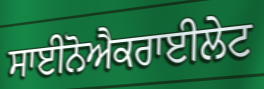
ਸਾਈਨੋਐਕਰਾਈਲੇਟ